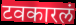
टवकारलं